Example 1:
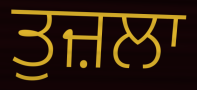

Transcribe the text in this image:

ਤੁਜ਼ਲਾ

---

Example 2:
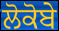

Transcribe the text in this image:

ਲੋਕੋਬੇ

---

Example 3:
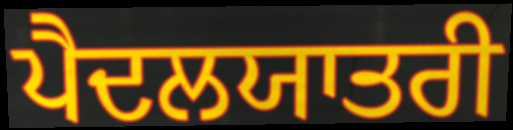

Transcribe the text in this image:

ਪੈਦਲਯਾਤਰੀ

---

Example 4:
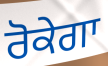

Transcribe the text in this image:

ਰੋਕੇਗਾ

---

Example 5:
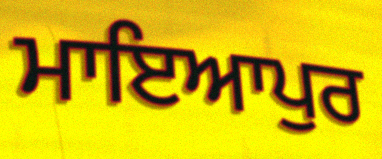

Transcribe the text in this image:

ਮਾਇਆਪੁਰ